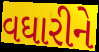
વઘારીને